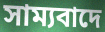
সাম্যবাদে